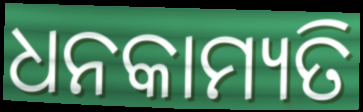
ଧନକାମ୍ୟତି